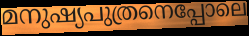
മനുഷ്യപുത്രനെപ്പോലെ